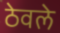
ठेवले